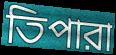
তিপারা